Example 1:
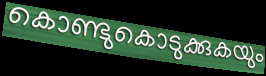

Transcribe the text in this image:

കൊണ്ടുകൊടുക്കുകയും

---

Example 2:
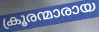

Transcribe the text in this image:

ക്രൂരന്മാരായ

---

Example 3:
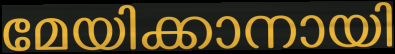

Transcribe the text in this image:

മേയിക്കാനായി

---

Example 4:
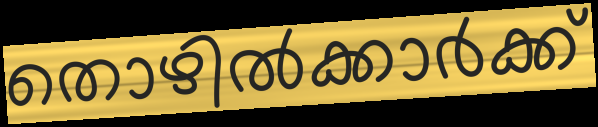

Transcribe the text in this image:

തൊഴിൽക്കാർക്ക്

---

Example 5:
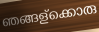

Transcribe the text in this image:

ഞങ്ങള്ക്കൊരു